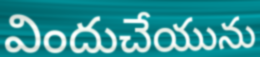
విందుచేయును